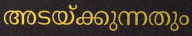
അടയ്ക്കുന്നതും